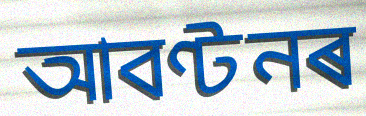
আবণ্টনৰ